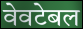
वेवटेबल